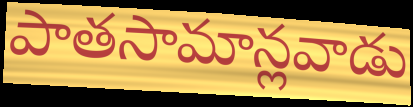
పాతసామాన్లవాడు